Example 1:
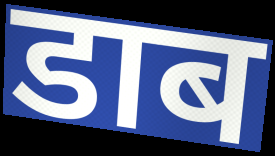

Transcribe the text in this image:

डाब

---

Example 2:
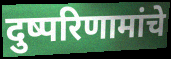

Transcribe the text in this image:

दुष्परिणामांचे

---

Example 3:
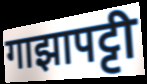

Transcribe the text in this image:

गाझापट्टी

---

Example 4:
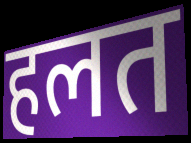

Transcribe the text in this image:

हलत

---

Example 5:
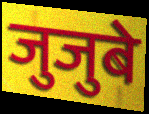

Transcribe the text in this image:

जुजुबे